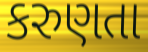
કરુણતા